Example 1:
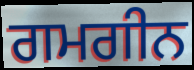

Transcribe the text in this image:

ਗਮਗੀਨ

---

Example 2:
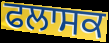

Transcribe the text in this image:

ਫਲਾਸਕ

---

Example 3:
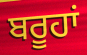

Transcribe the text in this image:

ਬਰੂਹਾਂ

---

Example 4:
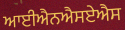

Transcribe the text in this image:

ਆਈਐਨਐਸਏਐਸ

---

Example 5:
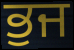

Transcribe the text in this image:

ਭੁਜ